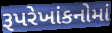
રૂપરેખાંકનોમાં